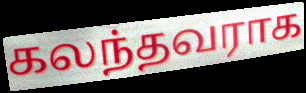
கலந்தவராக